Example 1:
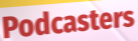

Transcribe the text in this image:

Podcasters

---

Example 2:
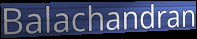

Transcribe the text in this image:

Balachandran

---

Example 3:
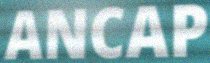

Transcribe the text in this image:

ANCAP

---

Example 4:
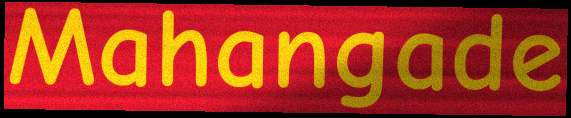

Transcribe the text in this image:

Mahangade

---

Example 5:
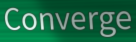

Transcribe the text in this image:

Converge